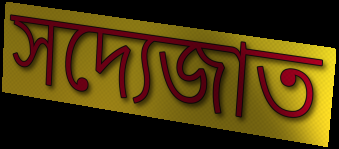
সদ্যেজাত